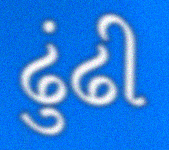
ઢુંઢી